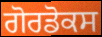
ਗੋਰਡੋਕਸ